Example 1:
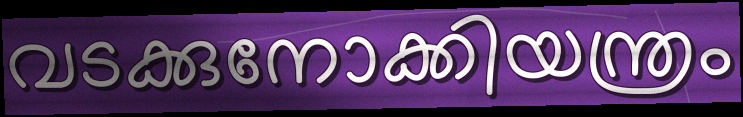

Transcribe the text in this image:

വടക്കുനോക്കിയന്ത്രം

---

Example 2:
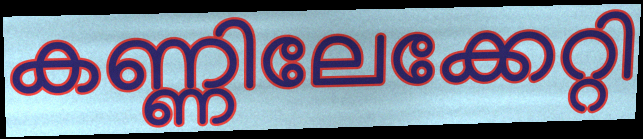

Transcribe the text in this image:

കണ്ണിലേക്കേറ്റി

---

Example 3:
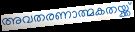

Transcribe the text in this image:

അവതരണാത്മകതയ്ക്ക്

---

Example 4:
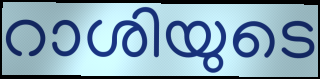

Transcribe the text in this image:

റാശിയുടെ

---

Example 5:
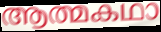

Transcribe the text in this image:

ആത്മകഥാ